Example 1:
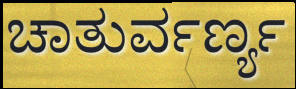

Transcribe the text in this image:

ಚಾತುರ್ವರ್ಣ್ಯ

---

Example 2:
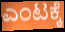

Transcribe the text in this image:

ಎಂಟಕ್ಕೆ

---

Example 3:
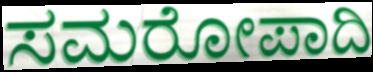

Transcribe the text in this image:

ಸಮರೋಪಾದಿ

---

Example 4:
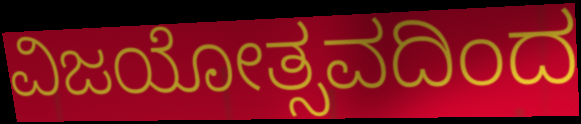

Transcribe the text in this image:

ವಿಜಯೋತ್ಸವದಿಂದ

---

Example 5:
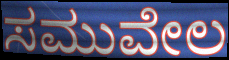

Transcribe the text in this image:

ಸಮುವೇಲ